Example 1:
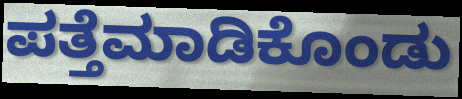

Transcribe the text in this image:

ಪತ್ತೆಮಾಡಿಕೊಂಡು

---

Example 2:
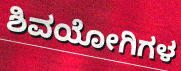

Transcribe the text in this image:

ಶಿವಯೋಗಿಗಳ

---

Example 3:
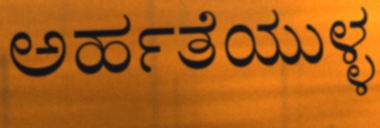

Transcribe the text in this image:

ಅರ್ಹತೆಯುಳ್ಳ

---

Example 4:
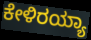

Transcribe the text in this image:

ಕೇಳಿರಯ್ಯಾ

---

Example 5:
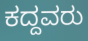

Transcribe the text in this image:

ಕದ್ದವರು